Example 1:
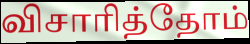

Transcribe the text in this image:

விசாரித்தோம்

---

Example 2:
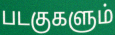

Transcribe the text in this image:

படகுகளும்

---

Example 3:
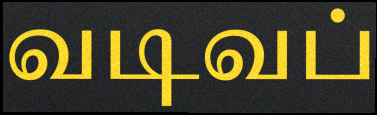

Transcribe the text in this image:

வடிவப்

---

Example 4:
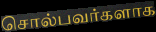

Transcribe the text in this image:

சொல்பவர்களாக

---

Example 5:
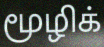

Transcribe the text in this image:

மூழிக்